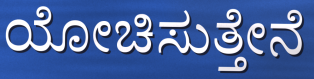
ಯೋಚಿಸುತ್ತೇನೆ